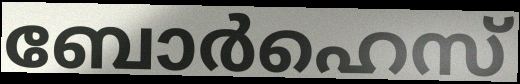
ബോർഹെസ്